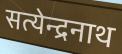
सत्येन्द्रनाथ